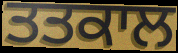
ਤਤਕਾਲ